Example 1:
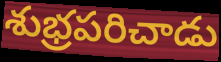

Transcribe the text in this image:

శుభ్రపరిచాడు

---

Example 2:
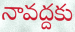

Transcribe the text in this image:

నావద్దకు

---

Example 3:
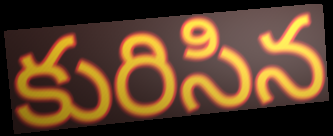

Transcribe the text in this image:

కురిసిన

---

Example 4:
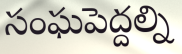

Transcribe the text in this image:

సంఘపెద్దల్ని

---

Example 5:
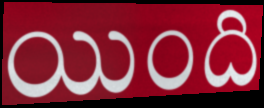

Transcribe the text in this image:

యింది